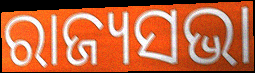
ରାଜ୍ୟସଭା